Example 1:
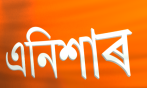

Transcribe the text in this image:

এনিশাৰ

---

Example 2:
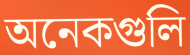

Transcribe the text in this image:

অনেকগুলি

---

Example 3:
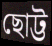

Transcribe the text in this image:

ছোট্ট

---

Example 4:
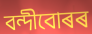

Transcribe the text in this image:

বন্দীবোৰৰ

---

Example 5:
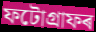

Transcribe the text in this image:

ফটোগ্ৰাফৰ